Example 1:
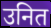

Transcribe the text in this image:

उनित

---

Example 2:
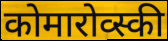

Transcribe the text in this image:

कोमारोव्स्की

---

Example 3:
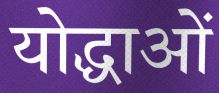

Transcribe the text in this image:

योद्धाओं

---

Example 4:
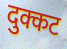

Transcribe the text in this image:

दुक्कट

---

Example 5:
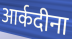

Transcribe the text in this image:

आर्कदीना